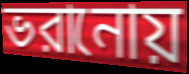
ভরানোয়